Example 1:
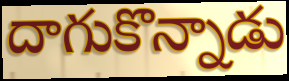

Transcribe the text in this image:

దాగుకొన్నాడు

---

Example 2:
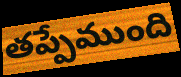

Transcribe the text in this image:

తప్పేముంది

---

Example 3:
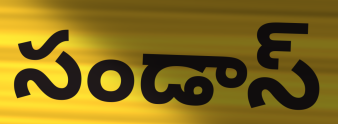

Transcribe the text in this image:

సండాస్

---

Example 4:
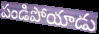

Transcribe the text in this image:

పండిపోయాడు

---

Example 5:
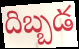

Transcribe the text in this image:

దిబ్బడ